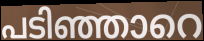
പടിഞ്ഞാറെ